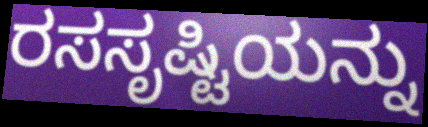
ರಸಸೃಷ್ಟಿಯನ್ನು